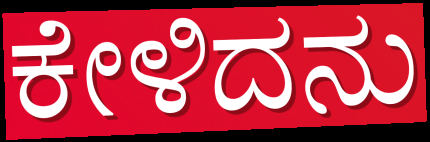
ಕೇಳಿದನು